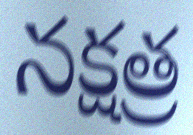
నక్షత్ర